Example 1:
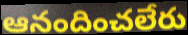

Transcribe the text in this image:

ఆనందించలేరు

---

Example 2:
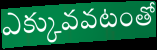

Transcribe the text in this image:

ఎక్కువవటంతో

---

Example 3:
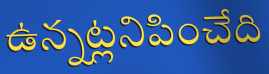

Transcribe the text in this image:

ఉన్నట్లనిపించేది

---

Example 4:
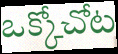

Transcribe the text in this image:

ఒక్కోచోట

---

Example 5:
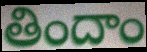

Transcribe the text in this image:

తిందాం